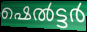
ഷെൽട്ടർ